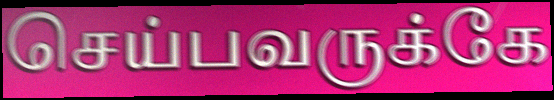
செய்பவருக்கே